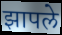
झापले